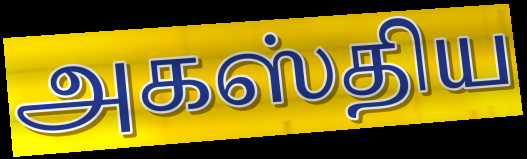
அகஸ்திய